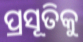
ପ୍ରସୂତିକୁ